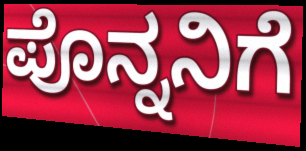
ಪೊನ್ನನಿಗೆ